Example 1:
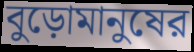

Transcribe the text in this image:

বুড়োমানুষের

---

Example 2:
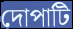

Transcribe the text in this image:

দোপাটি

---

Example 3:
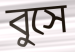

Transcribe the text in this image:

বুসে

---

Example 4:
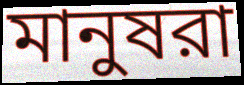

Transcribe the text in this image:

মানুষরা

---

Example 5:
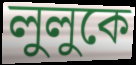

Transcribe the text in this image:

লুলুকে